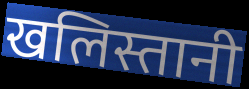
खलिस्तानी